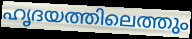
ഹൃദയത്തിലെത്തും